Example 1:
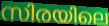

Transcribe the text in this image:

സിരയിലെ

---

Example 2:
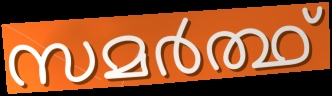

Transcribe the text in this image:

സമർത്ഥ്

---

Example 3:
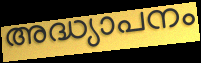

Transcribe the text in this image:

അദ്ധ്യാപനം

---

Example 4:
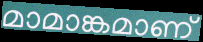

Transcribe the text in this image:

മാമാങ്കമാണ്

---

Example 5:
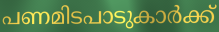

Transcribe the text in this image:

പണമിടപാടുകാർക്ക്